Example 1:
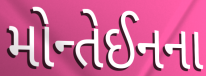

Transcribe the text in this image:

મોન્તેઈનના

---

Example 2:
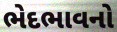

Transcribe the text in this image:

ભેદભાવનો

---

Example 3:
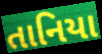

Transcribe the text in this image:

તાનિયા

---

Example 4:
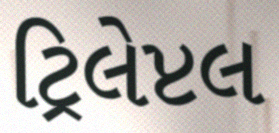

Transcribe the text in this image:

ટ્રિલેપ્ટલ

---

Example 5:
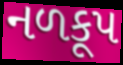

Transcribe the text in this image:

નળકૂપ